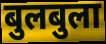
बुलबुला